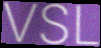
VSL